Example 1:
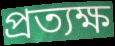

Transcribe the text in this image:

প্ৰত্যক্ষ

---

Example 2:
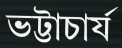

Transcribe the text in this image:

ভট্টাচাৰ্য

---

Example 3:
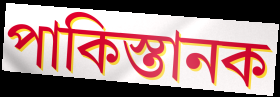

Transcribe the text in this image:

পাকিস্তানক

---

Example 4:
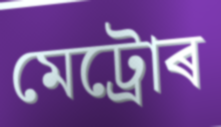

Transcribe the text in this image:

মেট্ৰোৰ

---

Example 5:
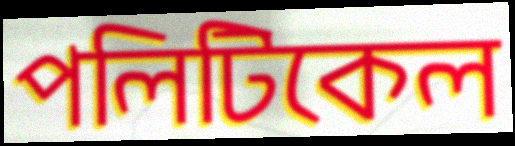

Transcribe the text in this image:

পলিটিকেল